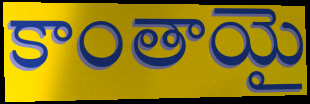
కాంతాయై